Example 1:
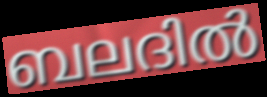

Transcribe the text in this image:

ബലദിൽ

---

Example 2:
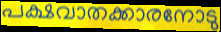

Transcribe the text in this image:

പക്ഷവാതക്കാരനോടു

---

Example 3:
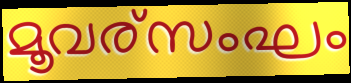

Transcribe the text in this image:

മൂവര്സംഘം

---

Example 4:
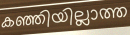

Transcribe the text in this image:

കഞ്ഞിയില്ലാത്ത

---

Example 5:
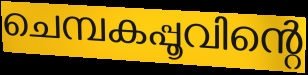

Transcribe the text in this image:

ചെമ്പകപ്പൂവിന്റെ